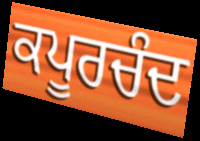
ਕਪੂਰਚੰਦ